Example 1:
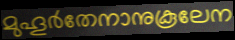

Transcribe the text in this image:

മുഹൂർതേനാനുകൂലേന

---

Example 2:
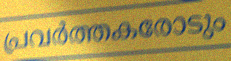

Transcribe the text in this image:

പ്രവർത്തകരോടും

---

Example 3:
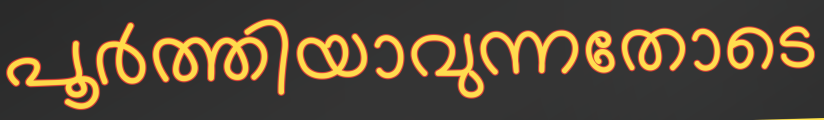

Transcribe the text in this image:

പൂർത്തിയാവുന്നതോടെ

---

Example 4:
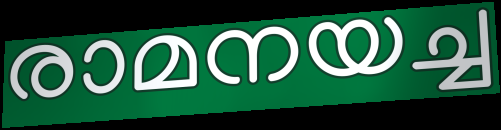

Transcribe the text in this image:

രാമനയച്ച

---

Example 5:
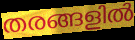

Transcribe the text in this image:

തരങ്ങളിൽ